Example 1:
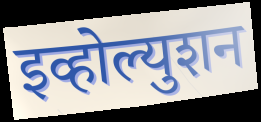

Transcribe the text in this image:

इव्होल्युशन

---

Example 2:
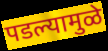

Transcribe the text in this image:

पडल्यामुळे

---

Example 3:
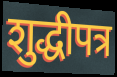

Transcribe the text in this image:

शुद्धीपत्र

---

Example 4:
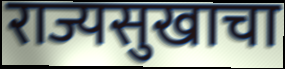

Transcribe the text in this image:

राज्यसुखाचा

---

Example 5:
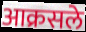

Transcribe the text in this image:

आक्रसले